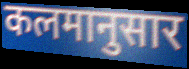
कलमानुसार